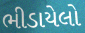
ભીડાયેલો